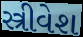
સ્ત્રીવેશ